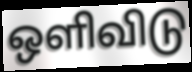
ஒளிவிடு